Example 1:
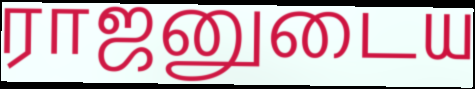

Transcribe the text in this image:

ராஜனுடைய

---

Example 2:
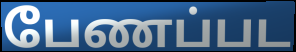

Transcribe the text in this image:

பேணப்பட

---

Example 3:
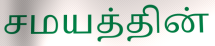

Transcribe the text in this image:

சமயத்தின்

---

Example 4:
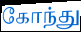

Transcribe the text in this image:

கோந்து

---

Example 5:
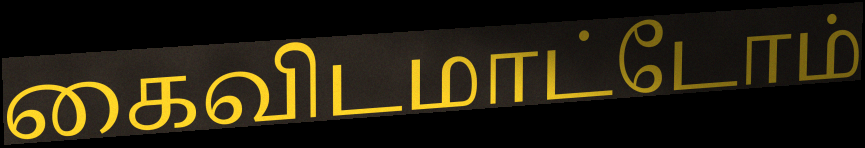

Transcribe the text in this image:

கைவிடமாட்டோம்